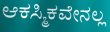
ಆಕಸ್ಮಿಕವೇನಲ್ಲ